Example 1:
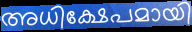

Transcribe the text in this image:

അധിക്ഷേപമായി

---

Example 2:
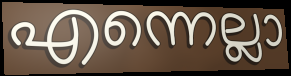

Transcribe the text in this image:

എന്നെല്ലാ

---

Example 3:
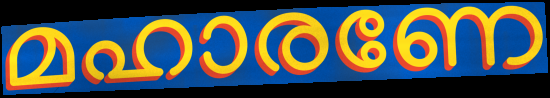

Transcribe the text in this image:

മഹാരണേ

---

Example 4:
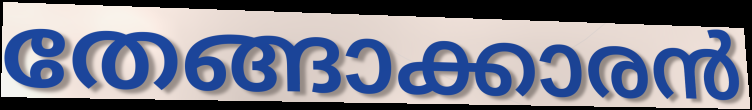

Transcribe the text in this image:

തേങ്ങാക്കാരൻ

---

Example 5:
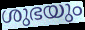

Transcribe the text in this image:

ശുഭയും